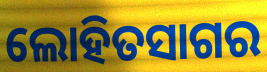
ଲୋହିତସାଗର